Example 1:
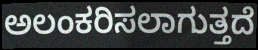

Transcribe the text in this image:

ಅಲಂಕರಿಸಲಾಗುತ್ತದೆ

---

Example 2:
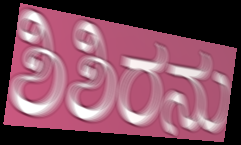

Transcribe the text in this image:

ಶಿಶಿರನು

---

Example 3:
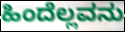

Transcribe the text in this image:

ಹಿಂದೆಲ್ಲವನು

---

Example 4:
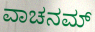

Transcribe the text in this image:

ವಾಚನಮ್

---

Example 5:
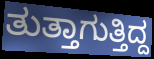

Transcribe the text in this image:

ತುತ್ತಾಗುತ್ತಿದ್ದ